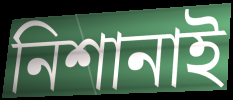
নিশানাই